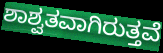
ಶಾಶ್ವತವಾಗಿರುತ್ತವೆ